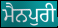
ਮੈਨਪੁਰੀ